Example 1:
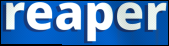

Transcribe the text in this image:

reaper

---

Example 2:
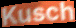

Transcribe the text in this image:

Kusch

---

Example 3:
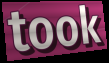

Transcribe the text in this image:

took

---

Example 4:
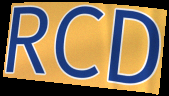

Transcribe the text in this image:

RCD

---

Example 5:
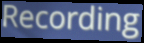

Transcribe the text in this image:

Recording